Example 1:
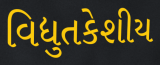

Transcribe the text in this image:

વિદ્યુતકેશીય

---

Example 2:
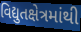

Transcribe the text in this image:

વિદ્યુતક્ષેત્રમાંથી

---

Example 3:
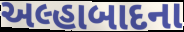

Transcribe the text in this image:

અલ્હાબાદના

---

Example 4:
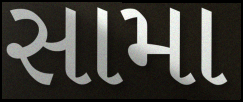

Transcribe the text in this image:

સામા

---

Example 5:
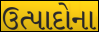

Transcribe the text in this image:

ઉત્પાદોના